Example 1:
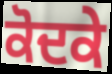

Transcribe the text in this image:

ਕੋਦਕੇ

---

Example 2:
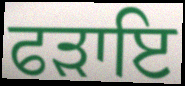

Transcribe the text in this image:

ਫੜਾਇ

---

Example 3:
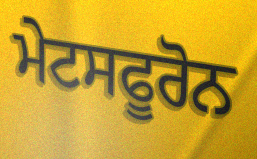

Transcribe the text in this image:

ਮੇਟਸਫੂਰੋਨ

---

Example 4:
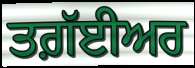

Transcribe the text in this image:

ਤਗ਼ੱਈਅਰ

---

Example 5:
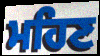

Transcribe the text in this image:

ਮਹਿਣ